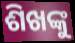
ଶିଖଙ୍କୁ